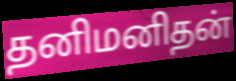
தனிமனிதன்